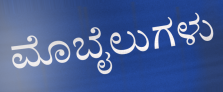
ಮೊಬೈಲುಗಳು